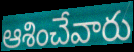
ఆశించేవారు